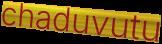
chaduvutu